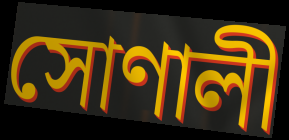
সোণালী